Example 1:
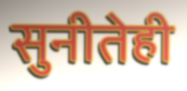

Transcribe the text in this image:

सुनीतेही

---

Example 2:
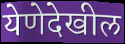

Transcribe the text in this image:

येणेदेखील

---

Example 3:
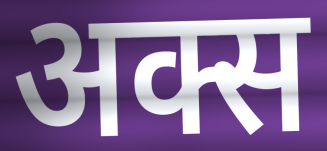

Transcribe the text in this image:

अक्स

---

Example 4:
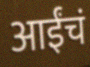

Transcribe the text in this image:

आईंचं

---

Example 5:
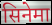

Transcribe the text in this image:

सिनेमा